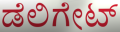
ಡೆಲಿಗೇಟ್